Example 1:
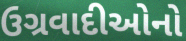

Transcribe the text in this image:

ઉગ્રવાદીઓનો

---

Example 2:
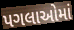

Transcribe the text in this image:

પગલાઓમાં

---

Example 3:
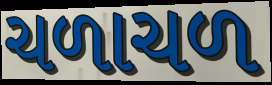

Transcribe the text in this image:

ચળાચળ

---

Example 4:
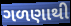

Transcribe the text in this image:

ગળણાથી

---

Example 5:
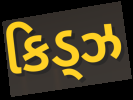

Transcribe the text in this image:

કિડ્ઝ